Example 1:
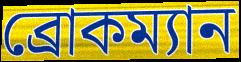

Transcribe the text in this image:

ব্রোকম্যান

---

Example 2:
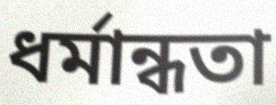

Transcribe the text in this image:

ধর্মান্ধতা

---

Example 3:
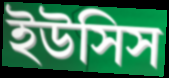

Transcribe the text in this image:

ইউসিস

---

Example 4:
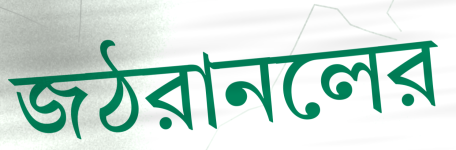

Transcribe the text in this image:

জঠরানলের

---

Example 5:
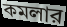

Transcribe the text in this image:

কমলার